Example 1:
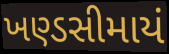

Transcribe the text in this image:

ખણ્ડસીમાયં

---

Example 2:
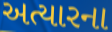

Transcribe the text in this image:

અત્યારના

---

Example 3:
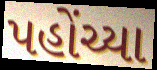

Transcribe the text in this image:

પહોંચ્યા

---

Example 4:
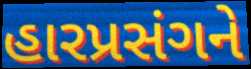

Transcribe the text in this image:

હારપ્રસંગને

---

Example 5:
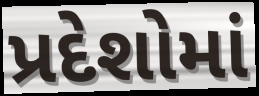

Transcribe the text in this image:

પ્રદેશોમાં